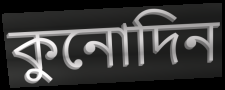
কুনোদিন